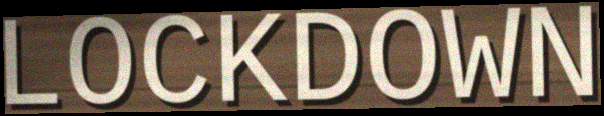
LOCKDOWN